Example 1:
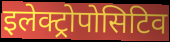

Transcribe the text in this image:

इलेक्ट्रोपोसिटिव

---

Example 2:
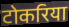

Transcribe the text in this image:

टोकरिया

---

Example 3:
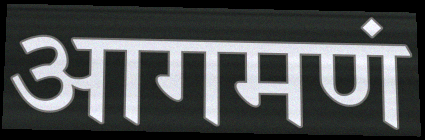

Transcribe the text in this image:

आगमणं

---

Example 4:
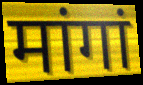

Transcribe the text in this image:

मांगां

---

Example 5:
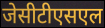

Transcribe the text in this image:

जेसीटीएसएल